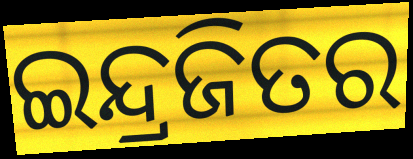
ଇନ୍ଦ୍ରଜିତର